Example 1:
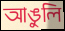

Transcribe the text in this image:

আঙুলি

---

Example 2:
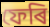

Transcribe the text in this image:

ফেৰি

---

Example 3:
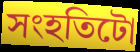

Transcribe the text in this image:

সংহতিটো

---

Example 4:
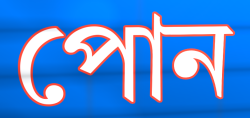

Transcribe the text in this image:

পোন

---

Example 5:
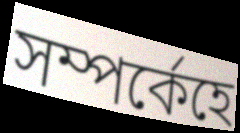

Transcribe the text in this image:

সম্পৰ্কেহে